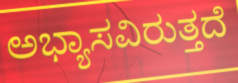
ಅಭ್ಯಾಸವಿರುತ್ತದೆ